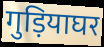
गुड़ियाघर